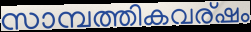
സാമ്പത്തികവര്ഷം